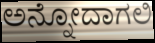
ಅನ್ನೋದಾಗಲಿ